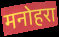
मनोहरा